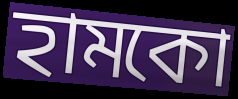
হামকো